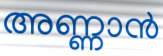
അണ്ണാൻ